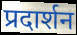
प्रदार्शन